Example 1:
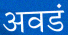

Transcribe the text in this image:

अवडं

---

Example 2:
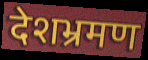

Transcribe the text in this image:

देशभ्रमण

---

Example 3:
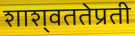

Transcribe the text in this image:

शाश्वततेप्रती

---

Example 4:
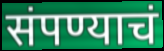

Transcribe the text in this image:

संपण्याचं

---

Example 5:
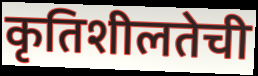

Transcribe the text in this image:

कृतिशीलतेची